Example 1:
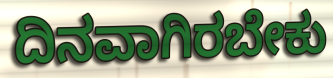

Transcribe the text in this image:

ದಿನವಾಗಿರಬೇಕು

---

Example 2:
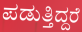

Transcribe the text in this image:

ಪಡುತ್ತಿದ್ದರೆ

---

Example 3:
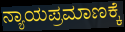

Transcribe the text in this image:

ನ್ಯಾಯಪ್ರಮಾಣಕ್ಕೆ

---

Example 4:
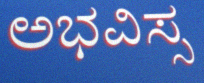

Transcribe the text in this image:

ಅಭವಿಸ್ಸ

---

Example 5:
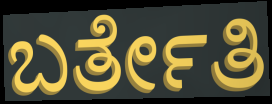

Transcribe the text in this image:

ಬರ್ತೇತಿ